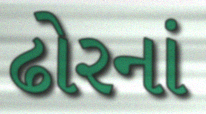
ઢોરનાં